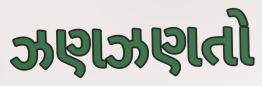
ઝણઝણતો